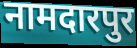
नामदारपुर